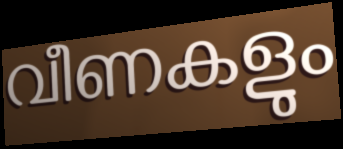
വീണകളും